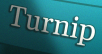
Turnip